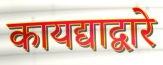
कायद्याद्वारे